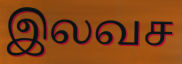
இலவச